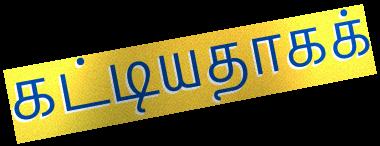
கட்டியதாகக்